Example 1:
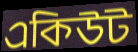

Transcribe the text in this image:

একিউট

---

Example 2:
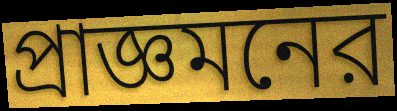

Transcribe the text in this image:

প্রাজ্ঞমনের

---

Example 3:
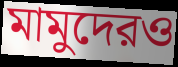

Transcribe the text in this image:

মামুদেরও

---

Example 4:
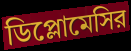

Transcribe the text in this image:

ডিপ্লোমেসির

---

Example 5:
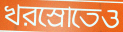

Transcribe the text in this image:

খরস্রোতেও